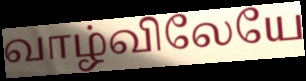
வாழ்விலேயே